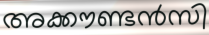
അക്കൗണ്ടൻസി